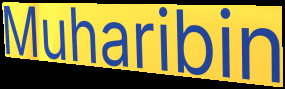
Muharibin